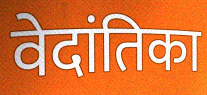
वेदांतिका